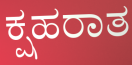
ಕ್ಷಹರಾತ